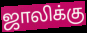
ஜாலிக்கு